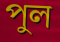
পুল